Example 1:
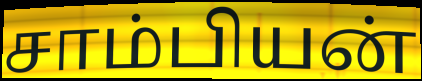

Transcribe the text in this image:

சாம்பியன்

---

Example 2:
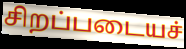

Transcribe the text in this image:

சிறப்படையச்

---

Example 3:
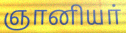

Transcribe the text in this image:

ஞானியர்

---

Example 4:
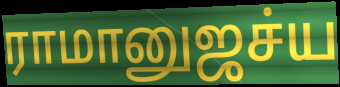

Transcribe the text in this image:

ராமானுஜச்ய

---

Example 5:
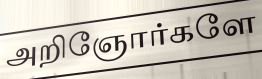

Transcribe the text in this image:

அறிஞோர்களே